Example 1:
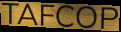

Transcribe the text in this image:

TAFCOP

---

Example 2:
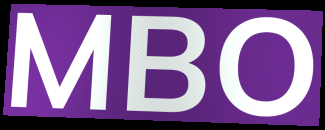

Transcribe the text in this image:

MBO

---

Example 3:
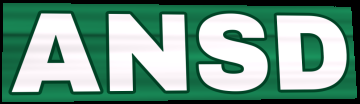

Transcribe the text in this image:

ANSD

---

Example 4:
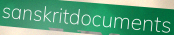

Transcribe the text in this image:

sanskritdocuments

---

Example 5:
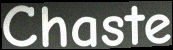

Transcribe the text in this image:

Chaste